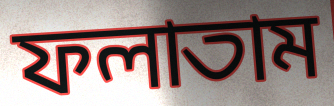
ফলাতাম